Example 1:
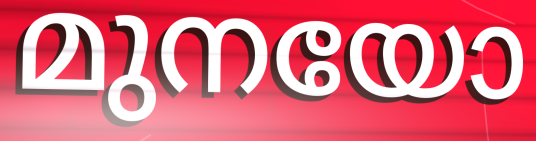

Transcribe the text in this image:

മുനയോ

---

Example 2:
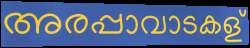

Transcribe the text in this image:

അരപ്പാവാടകള്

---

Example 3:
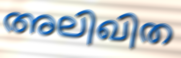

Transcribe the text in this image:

അലിഖിത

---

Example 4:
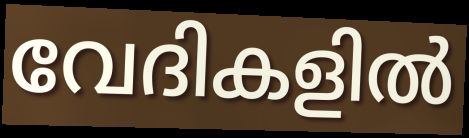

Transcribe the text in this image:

വേദികളിൽ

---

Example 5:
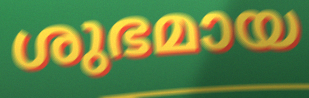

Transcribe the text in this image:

ശുഭമായ